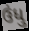
ઉંધુ